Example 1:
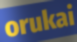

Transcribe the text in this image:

orukai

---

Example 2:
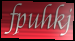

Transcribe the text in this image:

fpuhkj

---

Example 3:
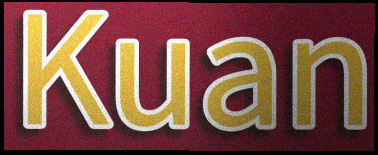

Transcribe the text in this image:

Kuan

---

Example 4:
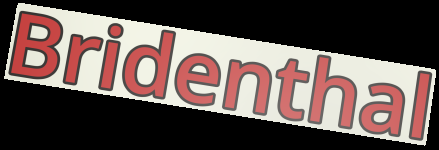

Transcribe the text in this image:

Bridenthal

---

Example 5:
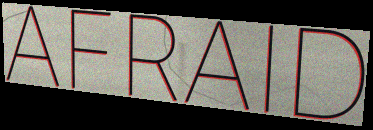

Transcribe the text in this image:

AFRAID